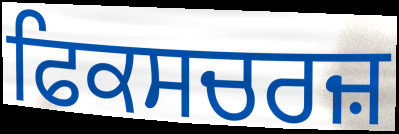
ਫਿਕਸਚਰਜ਼